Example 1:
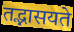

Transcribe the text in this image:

तद्भासयते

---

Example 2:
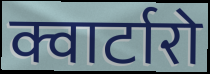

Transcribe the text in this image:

क्वार्टारो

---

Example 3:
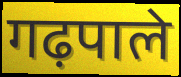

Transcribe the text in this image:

गढ़पाले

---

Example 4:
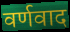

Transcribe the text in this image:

वर्णवाद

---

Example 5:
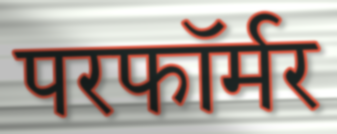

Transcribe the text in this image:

परफॉर्मर